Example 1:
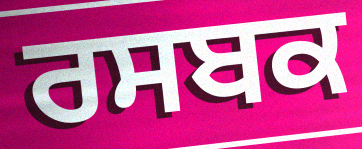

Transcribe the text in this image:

ਰਸਬਕ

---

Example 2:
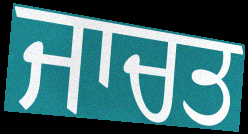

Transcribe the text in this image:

ਜਾਚਤ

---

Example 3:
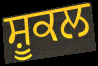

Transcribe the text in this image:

ਸ਼ੂਕਲ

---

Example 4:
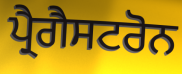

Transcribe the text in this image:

ਪ੍ਰੈਗੈਸਟਰੋਨ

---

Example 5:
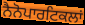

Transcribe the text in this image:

ਨੈਨੋਪਾਰਟਿਕਲਾਂ